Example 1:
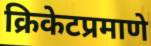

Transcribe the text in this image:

क्रिकेटप्रमाणे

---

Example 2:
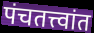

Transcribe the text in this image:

पंचतत्त्वांत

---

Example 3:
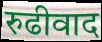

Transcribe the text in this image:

रुढीवाद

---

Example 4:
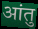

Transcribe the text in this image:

आंतु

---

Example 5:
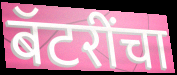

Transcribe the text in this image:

बॅटरींचा